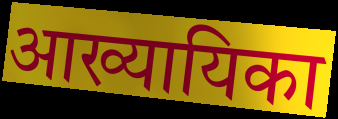
आख्यायिका